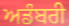
ਅਡੰਬਰੀ